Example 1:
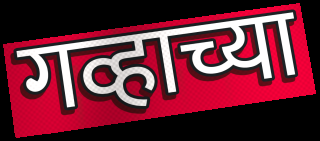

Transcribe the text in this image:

गव्हाच्या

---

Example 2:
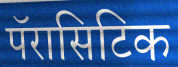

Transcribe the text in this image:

पॅरासिटिक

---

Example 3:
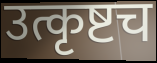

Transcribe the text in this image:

उत्कृष्टच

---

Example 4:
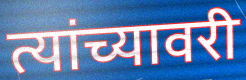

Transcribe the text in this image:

त्यांच्यावरी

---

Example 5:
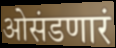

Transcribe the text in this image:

ओसंडणारं